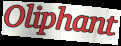
Oliphant